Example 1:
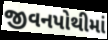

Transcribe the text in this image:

જીવનપોથીમાં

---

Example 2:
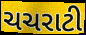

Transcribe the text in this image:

ચચરાટી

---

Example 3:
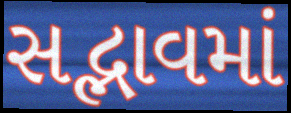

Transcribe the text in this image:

સદ્ભાવમાં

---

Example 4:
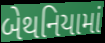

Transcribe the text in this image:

બેથનિયામાં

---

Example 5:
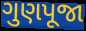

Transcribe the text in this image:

ગુણપૂજા